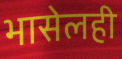
भासेलही